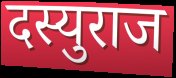
दस्युराज